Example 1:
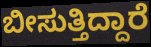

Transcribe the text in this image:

ಬೀಸುತ್ತಿದ್ದಾರೆ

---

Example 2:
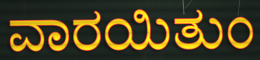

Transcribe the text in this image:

ವಾರಯಿತುಂ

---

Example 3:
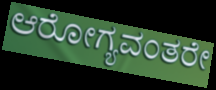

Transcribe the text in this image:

ಆರೋಗ್ಯವಂತರೇ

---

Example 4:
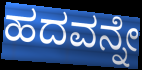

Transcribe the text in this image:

ಹದವನ್ನೇ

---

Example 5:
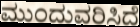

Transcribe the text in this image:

ಮುಂದುವರಿಸಿದೆ